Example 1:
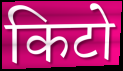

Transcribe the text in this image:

किटो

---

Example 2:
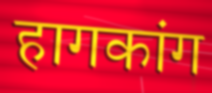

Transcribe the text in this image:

हागकांग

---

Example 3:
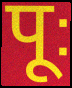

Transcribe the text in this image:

पूः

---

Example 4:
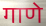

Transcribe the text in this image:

गाणे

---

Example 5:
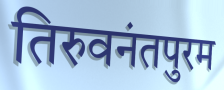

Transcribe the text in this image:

तिरुवनंतपुरम